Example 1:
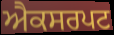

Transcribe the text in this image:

ਐਕਸਰਪਟ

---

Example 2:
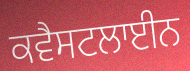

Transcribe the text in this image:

ਕਵੈਸਟਲਾਈਨ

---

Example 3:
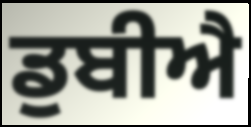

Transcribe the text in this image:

ਡੁਬੀਐ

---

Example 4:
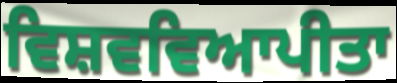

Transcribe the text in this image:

ਵਿਸ਼ਵਵਿਆਪੀਤਾ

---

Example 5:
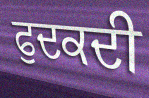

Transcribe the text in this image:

ਫੁਦਕਦੀ